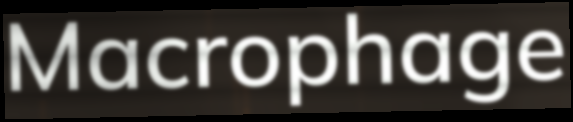
Macrophage